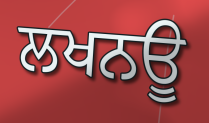
ਲਖਨਊ